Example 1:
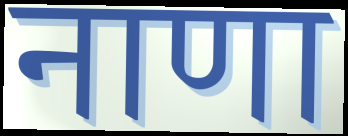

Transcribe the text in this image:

नाणा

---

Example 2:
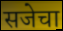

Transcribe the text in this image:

सजेचा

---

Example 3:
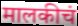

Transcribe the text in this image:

मालकीचं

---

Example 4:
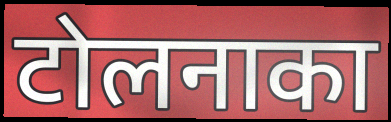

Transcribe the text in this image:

टोलनाका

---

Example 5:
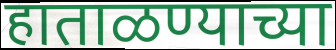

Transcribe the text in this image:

हाताळण्याच्या